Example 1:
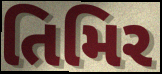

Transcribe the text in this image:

તિમિર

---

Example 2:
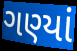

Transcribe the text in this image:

ગણ્યાં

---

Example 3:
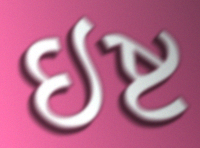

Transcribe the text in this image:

ઇષ્ટ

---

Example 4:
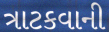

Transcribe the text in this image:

ત્રાટકવાની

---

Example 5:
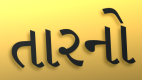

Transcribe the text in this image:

તારનો